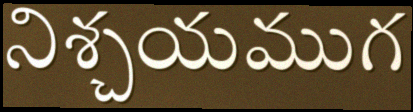
నిశ్చయముగ